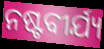
ନଷ୍ଟବୀର୍ଯ୍ୟ